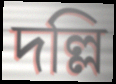
দল্লি